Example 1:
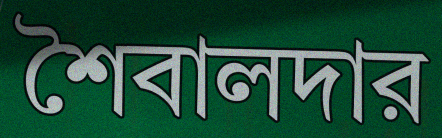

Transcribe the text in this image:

শৈবালদার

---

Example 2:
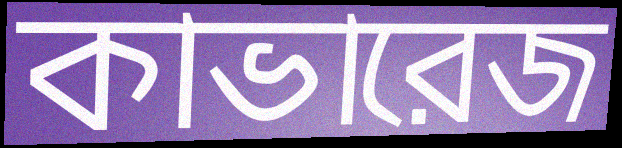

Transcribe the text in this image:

কাভারেজ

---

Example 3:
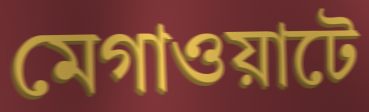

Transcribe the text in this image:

মেগাওয়াটে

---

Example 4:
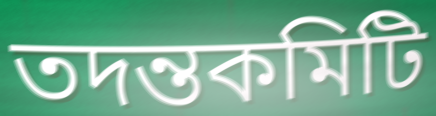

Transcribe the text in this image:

তদন্তকমিটি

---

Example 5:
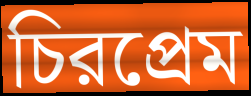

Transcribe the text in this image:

চিরপ্রেম